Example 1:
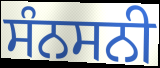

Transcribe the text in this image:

ਸੰਨਸਨੀ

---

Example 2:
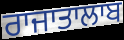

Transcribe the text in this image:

ਰਾਜਾਤਾਲਾਬ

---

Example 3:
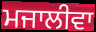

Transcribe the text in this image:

ਮਜਾਲੀਵਾ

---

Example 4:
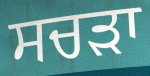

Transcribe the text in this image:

ਸਚੜਾ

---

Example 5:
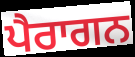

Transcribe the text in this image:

ਪੈਰਾਗਨ